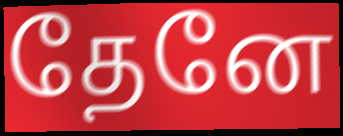
தேனே